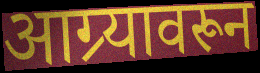
आग्र्यावरून